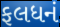
ફલધનં